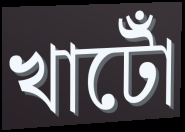
খাটোঁ